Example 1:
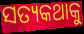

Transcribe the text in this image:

ସତ୍ୟକଥାକୁ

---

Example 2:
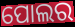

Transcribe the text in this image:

ପୋଲର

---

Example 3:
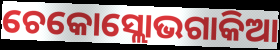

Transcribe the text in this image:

ଚେକୋସ୍ଲୋଭଗାକିଆ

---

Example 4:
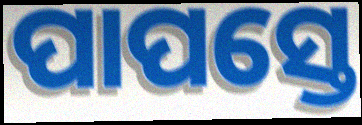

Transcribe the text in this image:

ପାପସ୍ତେ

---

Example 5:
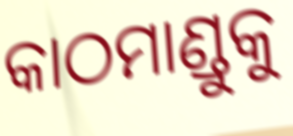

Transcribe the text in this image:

କାଠମାଣ୍ଡୁକୁ